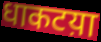
धाकटय़ा